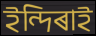
ইন্দিৰাই